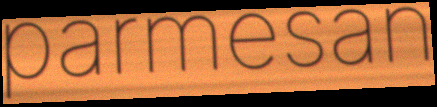
parmesan